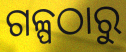
ଗଳ୍ପଠାରୁ